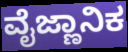
ವೈಜ್ಣಾನಿಕ